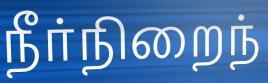
நீர்நிறைந்